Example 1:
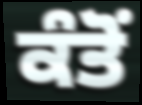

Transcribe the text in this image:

ਕੰਤੋਂ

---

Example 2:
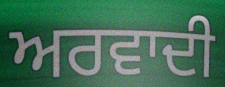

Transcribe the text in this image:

ਅਰਵਾਦੀ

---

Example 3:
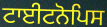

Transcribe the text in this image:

ਟਾਈਟਨੋਪਿਸ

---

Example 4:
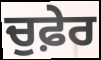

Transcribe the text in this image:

ਚੁਫ਼ੇਰ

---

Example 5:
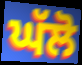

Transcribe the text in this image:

ਘੱਲੋ